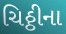
ચિઠ્ઠીના